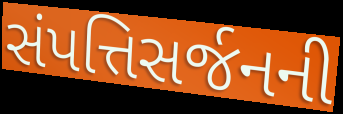
સંપત્તિસર્જનની